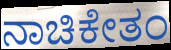
ನಾಚಿಕೇತಂ